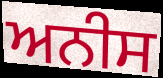
ਅਨੀਸ